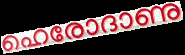
ഹെരോദാണു